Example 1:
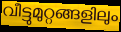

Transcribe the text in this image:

വീട്ടുമുറ്റങ്ങളിലും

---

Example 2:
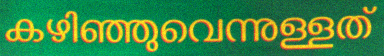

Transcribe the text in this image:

കഴിഞ്ഞുവെന്നുള്ളത്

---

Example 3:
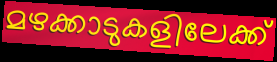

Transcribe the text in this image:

മഴക്കാടുകളിലേക്ക്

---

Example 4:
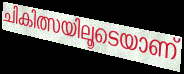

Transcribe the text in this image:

ചികിത്സയിലൂടെയാണ്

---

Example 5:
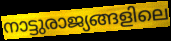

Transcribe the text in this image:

നാട്ടുരാജ്യങ്ങളിലെ